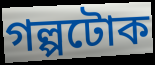
গল্পটোক